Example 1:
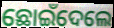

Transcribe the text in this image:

ଛୋଇଁଦେଲେ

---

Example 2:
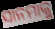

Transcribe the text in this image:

ସାନମାକୁ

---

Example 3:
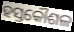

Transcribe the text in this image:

ହସ୍ତକୌଶଳ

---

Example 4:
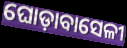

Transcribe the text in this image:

ଘୋଡ଼ାବାସେଳୀ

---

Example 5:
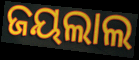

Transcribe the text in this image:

ଜୟଲାଲ